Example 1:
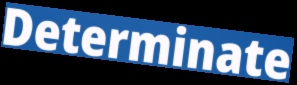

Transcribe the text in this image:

Determinate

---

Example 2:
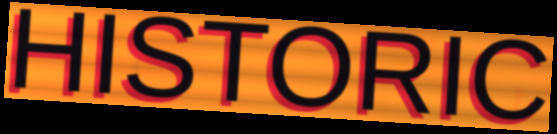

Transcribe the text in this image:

HISTORIC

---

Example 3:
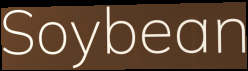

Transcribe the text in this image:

Soybean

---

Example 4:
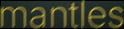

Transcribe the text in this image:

mantles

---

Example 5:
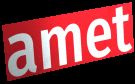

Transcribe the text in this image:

amet